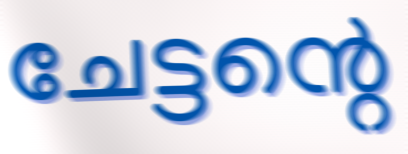
ചേട്ടന്റെ